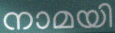
നാമയി